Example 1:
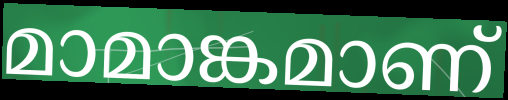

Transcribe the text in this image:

മാമാങ്കമാണ്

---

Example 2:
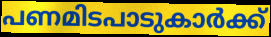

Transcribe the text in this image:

പണമിടപാടുകാർക്ക്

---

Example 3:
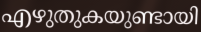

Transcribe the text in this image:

എഴുതുകയുണ്ടായി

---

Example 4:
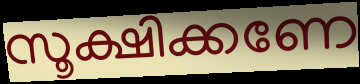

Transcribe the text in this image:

സൂക്ഷിക്കണേ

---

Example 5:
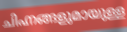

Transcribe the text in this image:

ചിഹ്നങ്ങളുമായുള്ള